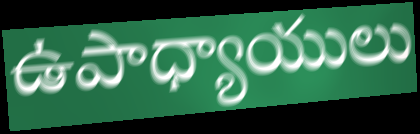
ఉపాధ్యాయులు